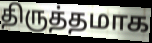
திருத்தமாக